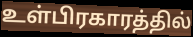
உள்பிரகாரத்தில்